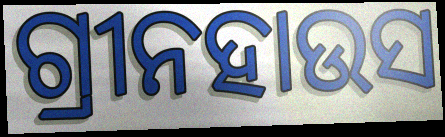
ଗ୍ରୀନହାଉସ